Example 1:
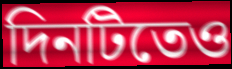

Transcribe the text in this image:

দিনটিতেও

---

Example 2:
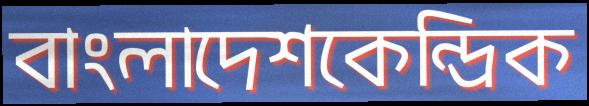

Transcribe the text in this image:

বাংলাদেশকেন্দ্রিক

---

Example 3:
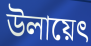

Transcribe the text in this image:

উলায়েৎ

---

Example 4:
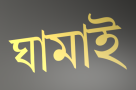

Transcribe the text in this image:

ঘামাই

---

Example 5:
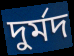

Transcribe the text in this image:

দুর্মদ